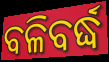
ବଳିବର୍ଦ୍ଧ